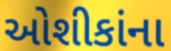
ઓશીકાંના